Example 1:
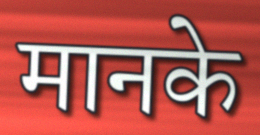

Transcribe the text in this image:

मानके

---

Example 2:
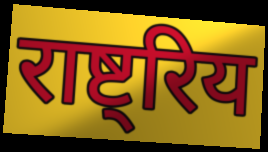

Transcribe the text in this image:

राष्ट्रिय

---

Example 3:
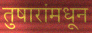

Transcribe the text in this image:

तुषारांमधून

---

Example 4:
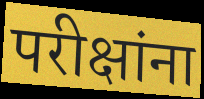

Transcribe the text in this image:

परीक्षांना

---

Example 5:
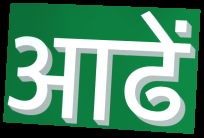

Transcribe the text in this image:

आढें